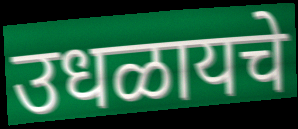
उधळायचे